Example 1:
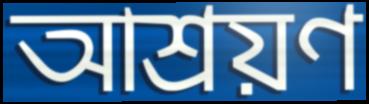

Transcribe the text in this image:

আশ্রয়ণ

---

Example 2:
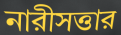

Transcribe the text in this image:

নারীসত্তার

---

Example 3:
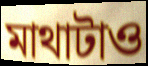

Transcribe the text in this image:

মাথাটাও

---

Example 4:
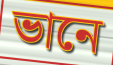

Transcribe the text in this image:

ভানে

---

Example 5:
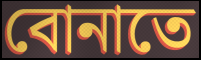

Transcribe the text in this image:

বোনাতে